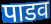
पाडव